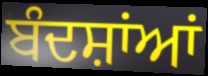
ਬੰਦਸ਼ਾਂਆਂ